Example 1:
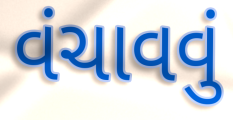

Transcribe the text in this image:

વંચાવવું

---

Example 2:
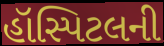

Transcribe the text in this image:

હૉસ્પિટલની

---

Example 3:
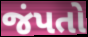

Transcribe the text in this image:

જંપતો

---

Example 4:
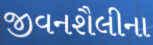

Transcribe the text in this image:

જીવનશૈલીના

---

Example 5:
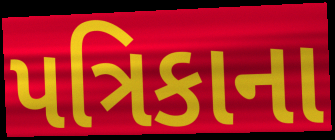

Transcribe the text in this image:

પત્રિકાના